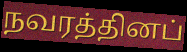
நவரத்தினப்